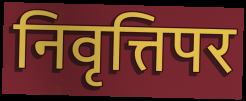
निवृत्तिपर